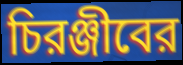
চিরঞ্জীবের